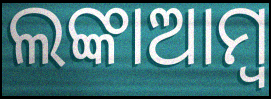
ଲଙ୍କାଆମ୍ବ